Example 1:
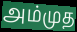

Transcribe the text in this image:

அம்முத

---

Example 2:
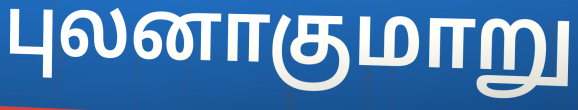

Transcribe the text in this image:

புலனாகுமாறு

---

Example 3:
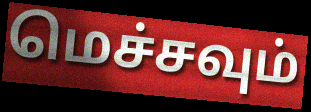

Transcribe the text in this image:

மெச்சவும்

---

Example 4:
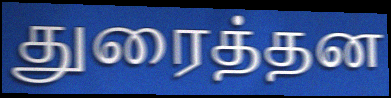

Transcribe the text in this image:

துரைத்தன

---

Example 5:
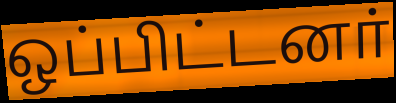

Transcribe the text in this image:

ஒப்பிட்டனர்